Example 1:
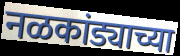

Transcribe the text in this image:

नळकांड्याच्या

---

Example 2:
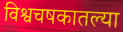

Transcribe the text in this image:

विश्वचषकातल्या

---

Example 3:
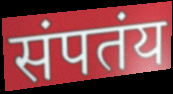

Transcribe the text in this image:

संपतंय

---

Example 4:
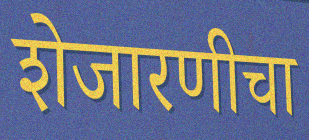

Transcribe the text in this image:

शेजारणीचा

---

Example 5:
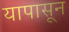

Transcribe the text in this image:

यापासून